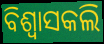
ବିଶ୍ଵାସକଲି